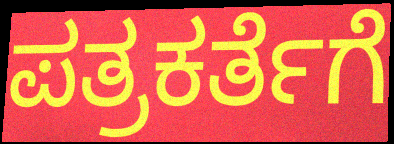
ಪತ್ರಕರ್ತೆಗೆ